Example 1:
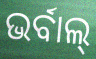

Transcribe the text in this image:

ଭର୍ବାଲ୍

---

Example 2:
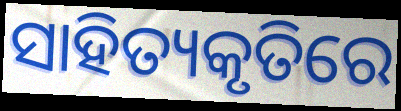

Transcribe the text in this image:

ସାହିତ୍ୟକୃତିରେ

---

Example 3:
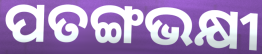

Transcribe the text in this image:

ପତଙ୍ଗଭକ୍ଷୀ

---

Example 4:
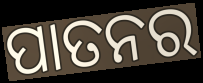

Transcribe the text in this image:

ପାତନର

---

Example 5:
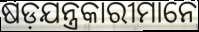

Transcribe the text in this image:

ଷଡ଼ଯନ୍ତ୍ରକାରୀମାନେ